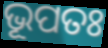
ଭୂପତଃ